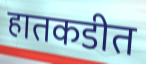
हातकडीत